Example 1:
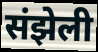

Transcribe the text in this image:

संझेली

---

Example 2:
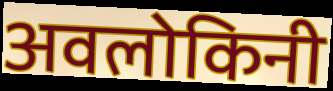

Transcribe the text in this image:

अवलोकिनी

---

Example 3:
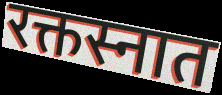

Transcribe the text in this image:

रक्तस्नात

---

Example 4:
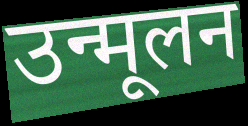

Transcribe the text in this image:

उन्मूलन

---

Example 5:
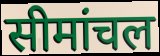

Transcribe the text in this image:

सीमांचल